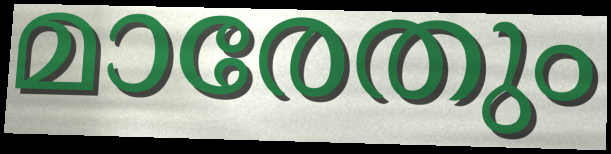
മാരേതും